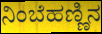
ನಿಂಬೆಹಣ್ಣಿನ